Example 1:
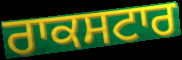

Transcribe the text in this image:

ਰਾਕਸਟਾਰ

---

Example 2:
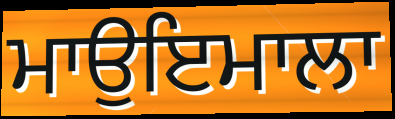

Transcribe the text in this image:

ਮਾਉਇਮਾਲਾ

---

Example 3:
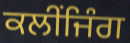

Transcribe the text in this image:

ਕਲੀਂਜਿੰਗ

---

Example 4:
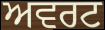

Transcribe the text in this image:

ਅਵਰਟ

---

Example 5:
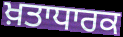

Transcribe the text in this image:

ਖ਼ਤਾਧਾਰਕ